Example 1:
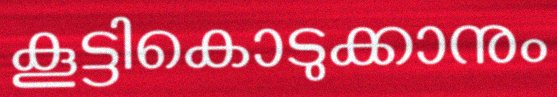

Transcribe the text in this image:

കൂട്ടികൊടുക്കാനും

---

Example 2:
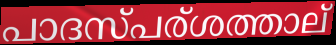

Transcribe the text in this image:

പാദസ്പര്ശത്താല്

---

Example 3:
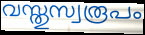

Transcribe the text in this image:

വസ്തുസ്വരൂപം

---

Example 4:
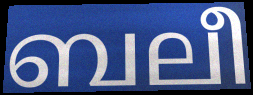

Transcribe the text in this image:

ബലീ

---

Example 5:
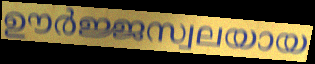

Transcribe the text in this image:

ഊർജ്ജസ്വലയായ